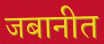
जबानीत